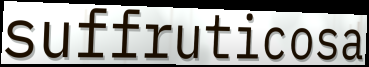
suffruticosa